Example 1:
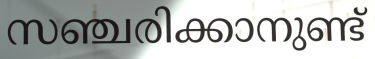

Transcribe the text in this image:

സഞ്ചരിക്കാനുണ്ട്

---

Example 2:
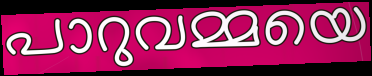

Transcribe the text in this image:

പാറുവമ്മയെ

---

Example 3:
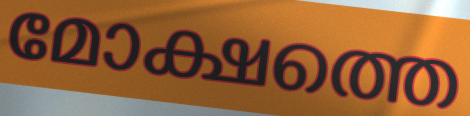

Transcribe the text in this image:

മോക്ഷത്തെ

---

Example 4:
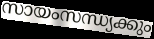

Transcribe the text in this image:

സായംസന്ധ്യക്കും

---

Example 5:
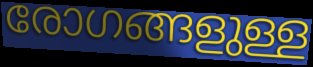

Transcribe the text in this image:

രോഗങ്ങളുള്ള